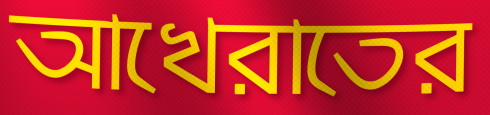
আখেরাতের